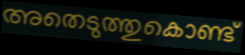
അതെടുത്തുകൊണ്ട്